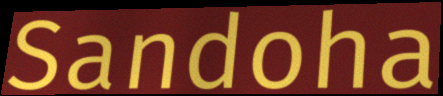
Sandoha